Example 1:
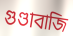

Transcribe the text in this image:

গুণ্ডাবাজি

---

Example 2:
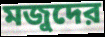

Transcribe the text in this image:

মজুদের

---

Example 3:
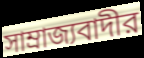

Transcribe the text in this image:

সাম্রাজ্যবাদীর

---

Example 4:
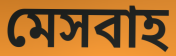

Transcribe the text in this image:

মেসবাহ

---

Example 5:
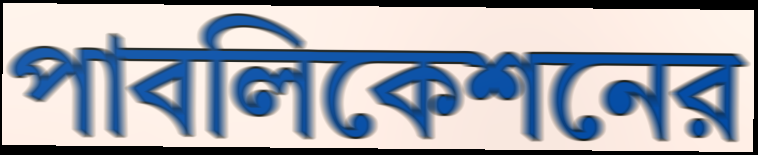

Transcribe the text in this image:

পাবলিকেশনের